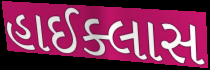
હાઈક્લાસ